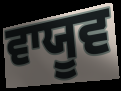
ਵਾਯੂਵ